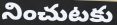
నించుటకు